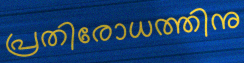
പ്രതിരോധത്തിനു